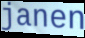
janen